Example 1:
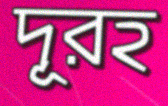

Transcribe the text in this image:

দূরহ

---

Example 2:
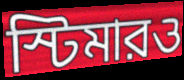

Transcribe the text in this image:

স্টিমারও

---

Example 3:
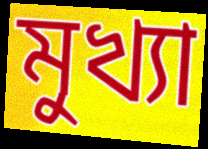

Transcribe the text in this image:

মুখ্যা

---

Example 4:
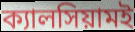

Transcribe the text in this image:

ক্যালসিয়ামই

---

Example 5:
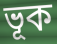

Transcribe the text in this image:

ভূক